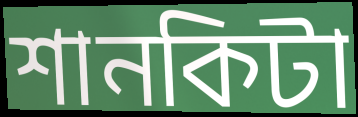
শানকিটা